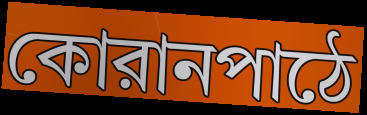
কোরানপাঠে